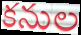
కనుల